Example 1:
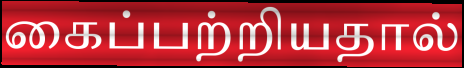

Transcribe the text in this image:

கைப்பற்றியதால்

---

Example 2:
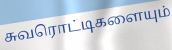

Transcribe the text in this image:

சுவரொட்டிகளையும்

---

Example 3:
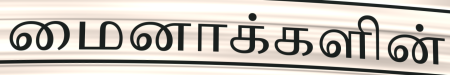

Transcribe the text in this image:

மைனாக்களின்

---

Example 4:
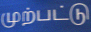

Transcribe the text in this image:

முற்பட்டு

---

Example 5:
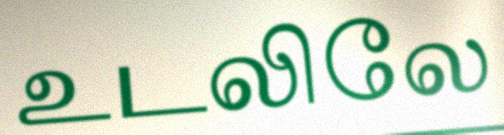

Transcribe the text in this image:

உடலிலே